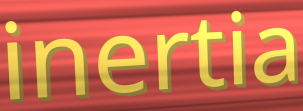
inertia